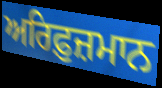
ਅਰਿਫ਼ੁਜ਼ਮਾਨ